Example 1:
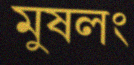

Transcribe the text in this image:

মুষলং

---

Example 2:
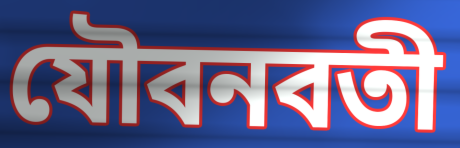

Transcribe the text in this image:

যৌবনবতী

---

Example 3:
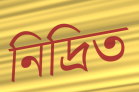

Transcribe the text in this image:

নিদ্রিত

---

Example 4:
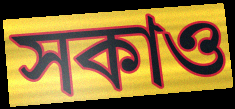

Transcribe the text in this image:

সকাও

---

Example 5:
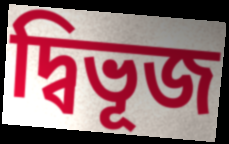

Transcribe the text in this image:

দ্বিভূজ